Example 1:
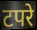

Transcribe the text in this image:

टपरे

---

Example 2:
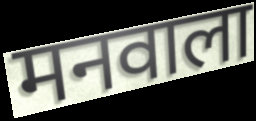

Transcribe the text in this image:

मनवाला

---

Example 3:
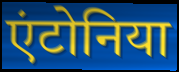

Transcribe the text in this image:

एंटोनिया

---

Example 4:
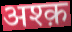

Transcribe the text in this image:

अश्क़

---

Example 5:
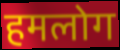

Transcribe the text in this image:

हमलोग